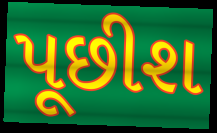
પૂછીશ